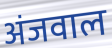
अंजवाल